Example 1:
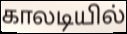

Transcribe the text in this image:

காலடியில்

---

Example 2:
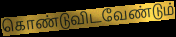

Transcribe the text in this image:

கொண்டுவிடவேண்டும்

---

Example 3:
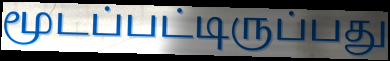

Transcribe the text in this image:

மூடப்பட்டிருப்பது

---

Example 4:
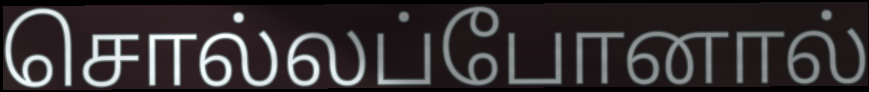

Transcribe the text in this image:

சொல்லப்போனால்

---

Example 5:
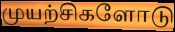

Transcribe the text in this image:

முயற்சிகளோடு